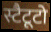
स्टैटूटो